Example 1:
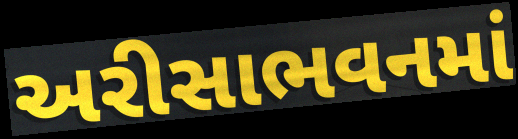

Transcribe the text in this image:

અરીસાભવનમાં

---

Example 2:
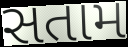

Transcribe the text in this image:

સતામ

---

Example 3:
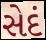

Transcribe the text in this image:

સેદં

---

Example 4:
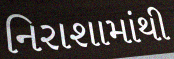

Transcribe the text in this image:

નિરાશામાંથી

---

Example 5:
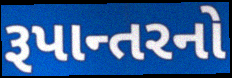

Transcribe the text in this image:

રૂપાન્તરનો